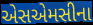
એસએમસીના